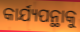
କାର୍ଯ୍ୟପନ୍ଥାକୁ